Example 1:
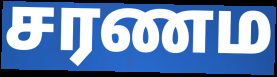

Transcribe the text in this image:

சரணம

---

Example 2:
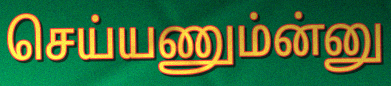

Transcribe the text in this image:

செய்யணும்ன்னு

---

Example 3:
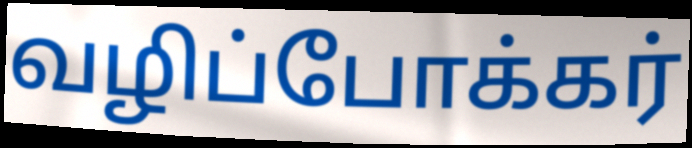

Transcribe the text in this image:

வழிப்போக்கர்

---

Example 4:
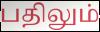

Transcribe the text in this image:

பதிலும்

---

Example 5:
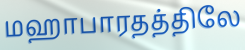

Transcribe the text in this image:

மஹாபாரதத்திலே